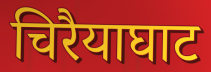
चिरैयाघाट